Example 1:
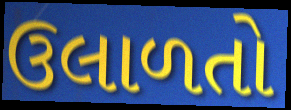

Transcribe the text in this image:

ઉલાળતો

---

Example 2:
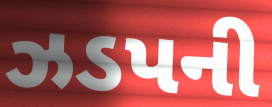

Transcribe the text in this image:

ઝડપની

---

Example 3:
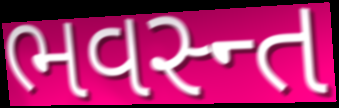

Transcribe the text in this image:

ભવસ્ન્ત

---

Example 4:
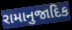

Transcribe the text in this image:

રામાનુજાદિક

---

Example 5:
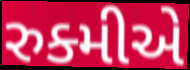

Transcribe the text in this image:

રુક્મીએ